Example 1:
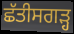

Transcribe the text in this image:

ਛੱਤੀਸਗਡ਼੍ਹ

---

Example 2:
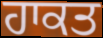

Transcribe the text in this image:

ਹਾਕਤ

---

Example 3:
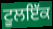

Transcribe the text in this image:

ਟੂਲਇੱਕ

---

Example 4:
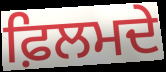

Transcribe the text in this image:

ਫ਼ਿਲਮਦੇ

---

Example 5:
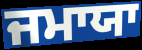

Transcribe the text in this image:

ਜਮਾਯਾ